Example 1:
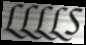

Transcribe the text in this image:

LLLLS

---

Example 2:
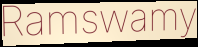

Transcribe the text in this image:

Ramswamy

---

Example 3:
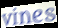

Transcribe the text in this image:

vines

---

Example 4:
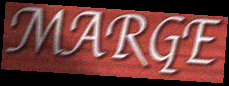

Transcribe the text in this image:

MARGE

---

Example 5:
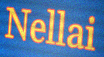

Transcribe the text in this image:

Nellai